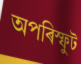
অপৰিস্ফুট